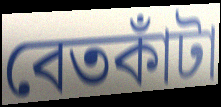
বেতকাঁটা